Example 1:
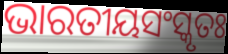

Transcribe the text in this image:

ଭାରତୀୟସଂସ୍କୃତଃ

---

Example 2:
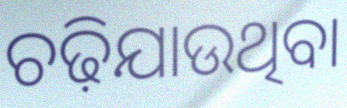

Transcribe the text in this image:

ଚଢ଼ିଯାଉଥିବା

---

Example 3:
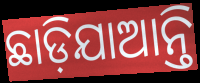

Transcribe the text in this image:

ଛାଡ଼ିଯାଆନ୍ତି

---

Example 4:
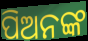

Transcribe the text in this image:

ପିଅନଙ୍କ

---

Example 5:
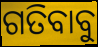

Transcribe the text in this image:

ଗତିବାବୁ